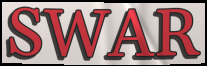
SWAR